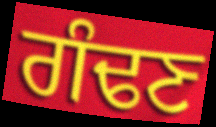
ਗੰਢਣ